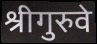
श्रीगुरुवे